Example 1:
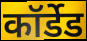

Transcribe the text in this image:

कॉर्डेड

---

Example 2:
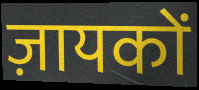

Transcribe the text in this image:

ज़ायकों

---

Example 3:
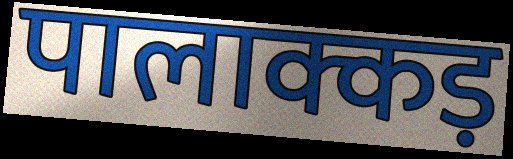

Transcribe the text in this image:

पालाक्कड़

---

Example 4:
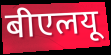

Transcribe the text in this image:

बीएलयू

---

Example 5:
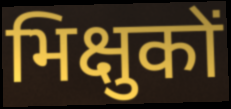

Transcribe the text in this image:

भिक्षुकों